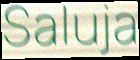
Saluja